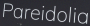
Pareidolia